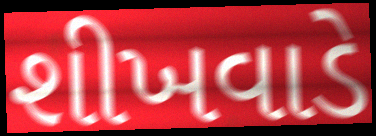
શીખવાડે